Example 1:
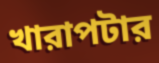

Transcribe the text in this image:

খারাপটার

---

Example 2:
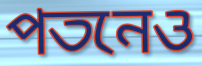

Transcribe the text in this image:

পতনেও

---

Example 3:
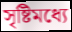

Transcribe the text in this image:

সৃষ্টিমধ্যে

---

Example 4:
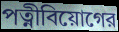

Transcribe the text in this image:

পত্নীবিয়োগের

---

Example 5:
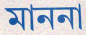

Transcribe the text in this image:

মাননা